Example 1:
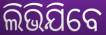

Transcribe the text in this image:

ଲିଭିଯିବେ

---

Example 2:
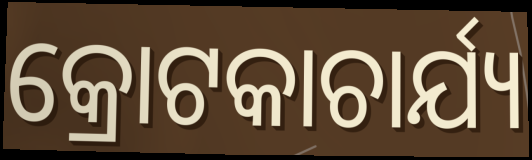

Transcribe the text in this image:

କ୍ରୋଟକାଚାର୍ଯ୍ୟ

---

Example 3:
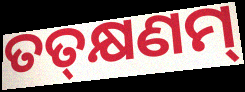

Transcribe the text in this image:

ତତ୍‌କ୍ଷଣମ୍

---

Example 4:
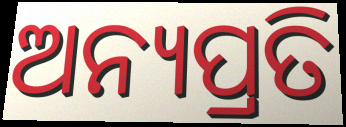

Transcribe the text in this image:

ଅନ୍ୟପ୍ରତି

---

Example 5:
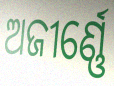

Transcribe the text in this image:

ଅଜୀର୍ଣ୍ଣେ